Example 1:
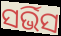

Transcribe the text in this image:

ସର୍ଭିସ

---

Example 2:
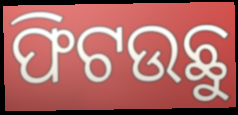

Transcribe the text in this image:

ଫିଟଉଛୁ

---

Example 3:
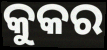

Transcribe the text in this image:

କୁକର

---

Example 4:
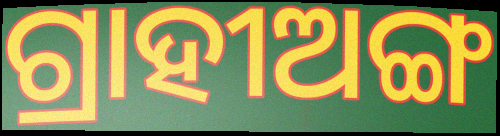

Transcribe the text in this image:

ଗ୍ରାହୀଅଙ୍ଗ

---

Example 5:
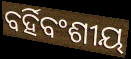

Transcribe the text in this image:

ବର୍ହିବଂଶୀୟ